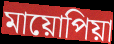
মায়োপিয়া